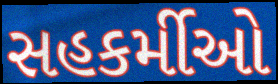
સહકર્મીઓ